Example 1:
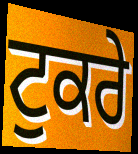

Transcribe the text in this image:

ਟੁਕਰੇ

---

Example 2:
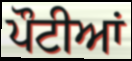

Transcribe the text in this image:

ਪੌਟੀਆਂ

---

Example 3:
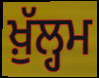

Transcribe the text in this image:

ਖ਼ੁੱਲ੍ਹਮ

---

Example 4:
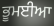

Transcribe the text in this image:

ਭੂਮਈਆ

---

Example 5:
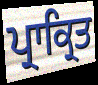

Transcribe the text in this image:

ਪ੍ਰਾਕ੍ਰਿਤ